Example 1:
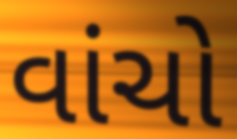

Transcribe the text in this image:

વાંચો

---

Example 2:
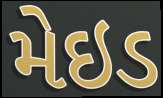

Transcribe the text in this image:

મેઇડ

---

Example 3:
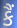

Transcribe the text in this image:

કૈં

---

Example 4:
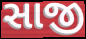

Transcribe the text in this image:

સાજી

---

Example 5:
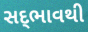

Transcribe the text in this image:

સદ્‍ભાવથી